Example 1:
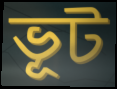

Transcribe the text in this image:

ভূট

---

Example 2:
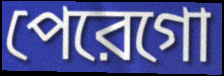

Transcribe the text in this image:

পেরেগো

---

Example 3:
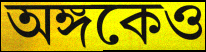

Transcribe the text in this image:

অঙ্গকেও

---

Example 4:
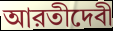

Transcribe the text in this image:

আরতীদেবী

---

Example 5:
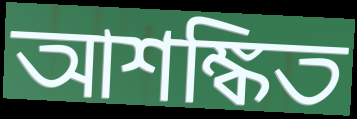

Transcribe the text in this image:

আশঙ্কিত